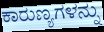
ಕಾರುಣ್ಯಗಳನ್ನು